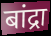
बांद्रा